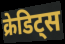
क्रेडिट्स